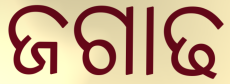
ଜଗାଢ